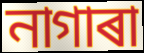
নাগাৰা